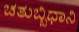
ಚತುಬ್ಬಿಧಾನಿ